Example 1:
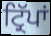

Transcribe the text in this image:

ਟ੍ਰਿੱਪਾਂ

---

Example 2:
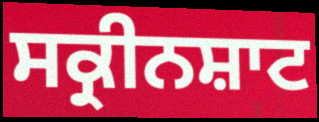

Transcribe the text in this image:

ਸਕ੍ਰੀਨਸ਼ਾਟ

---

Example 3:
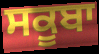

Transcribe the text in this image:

ਸਕੂਬਾ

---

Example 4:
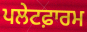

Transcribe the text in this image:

ਪਲੇਟਫ਼ਾਰਮ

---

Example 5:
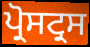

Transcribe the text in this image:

ਪ੍ਰੋਸਟ੍ਰਸ